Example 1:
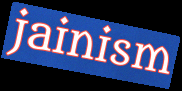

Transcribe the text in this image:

jainism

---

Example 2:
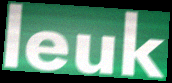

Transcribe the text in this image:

leuk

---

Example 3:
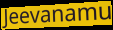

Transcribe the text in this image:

Jeevanamu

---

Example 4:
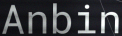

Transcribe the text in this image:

Anbin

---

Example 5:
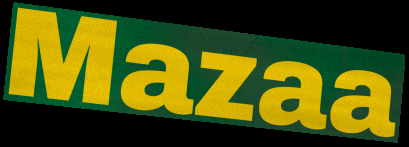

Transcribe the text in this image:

Mazaa